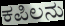
ಕಪಿಲನು